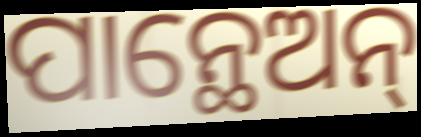
ପାନ୍ଥେଅନ୍